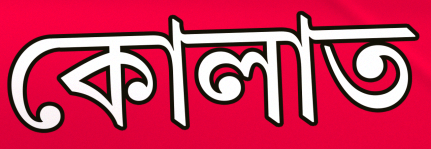
কোলাত